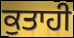
ਕੁਤਾਹੀ